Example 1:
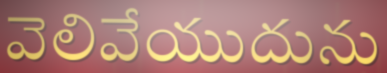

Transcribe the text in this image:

వెలివేయుదును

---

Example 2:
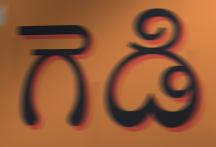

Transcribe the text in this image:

గెడి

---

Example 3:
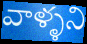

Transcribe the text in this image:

వాళ్ళని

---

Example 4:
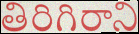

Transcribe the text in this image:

తిరిగిరాని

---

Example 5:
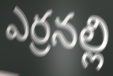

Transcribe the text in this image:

ఎర్రనల్లి